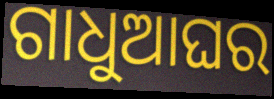
ଗାଧୁଆଘର